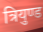
त्रियुण्ड